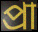
প্ৰা